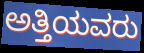
ಅತ್ತಿಯವರು